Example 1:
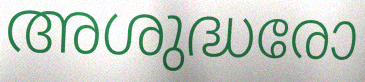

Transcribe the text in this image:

അശുദ്ധരോ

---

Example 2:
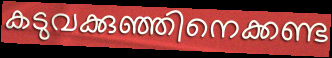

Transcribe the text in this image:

കടുവക്കുഞ്ഞിനെക്കണ്ട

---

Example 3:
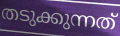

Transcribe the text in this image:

തടുക്കുന്നത്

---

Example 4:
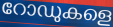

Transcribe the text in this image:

റോഡുകളെ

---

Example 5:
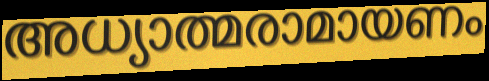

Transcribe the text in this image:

അധ്യാത്മരാമായണം